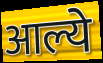
आल्ये